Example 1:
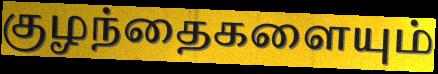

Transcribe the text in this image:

குழந்தைகளையும்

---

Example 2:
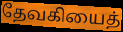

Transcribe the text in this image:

தேவகியைத்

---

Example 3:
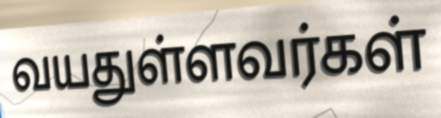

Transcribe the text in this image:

வயதுள்ளவர்கள்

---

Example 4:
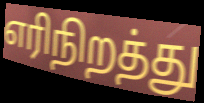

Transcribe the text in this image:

எரிநிறத்து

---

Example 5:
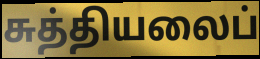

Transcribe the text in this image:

சுத்தியலைப்